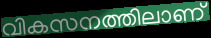
വികസനത്തിലാണ്